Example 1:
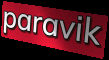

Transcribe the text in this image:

paravik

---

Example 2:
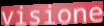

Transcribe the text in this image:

visione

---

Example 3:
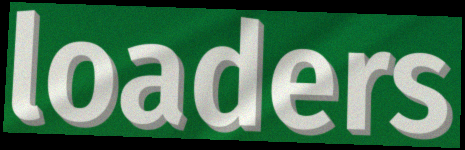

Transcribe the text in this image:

loaders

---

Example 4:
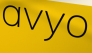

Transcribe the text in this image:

avyo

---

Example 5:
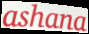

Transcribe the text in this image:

ashana